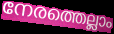
നേരത്തെല്ലാം